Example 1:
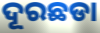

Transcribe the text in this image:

ଦୂରଛଡା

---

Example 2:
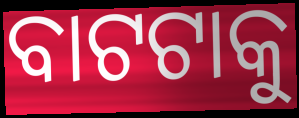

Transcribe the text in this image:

ବାଟଟାକୁ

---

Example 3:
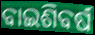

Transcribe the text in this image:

ବାଇଶିବର୍ଷ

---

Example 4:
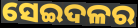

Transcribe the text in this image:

ସେଇଦଳର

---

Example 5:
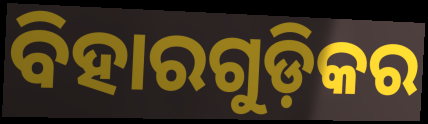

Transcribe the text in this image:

ବିହାରଗୁଡ଼ିକର